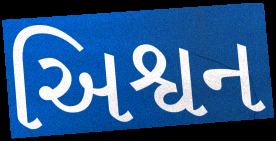
અિશ્વન